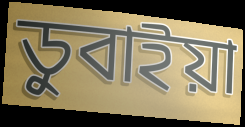
ডুবাইয়া